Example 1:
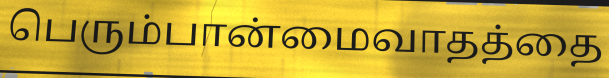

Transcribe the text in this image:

பெரும்பான்மைவாதத்தை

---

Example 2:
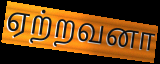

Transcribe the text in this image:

ஏற்றவனா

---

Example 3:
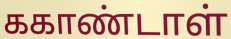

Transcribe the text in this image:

ககாண்டாள்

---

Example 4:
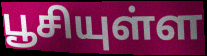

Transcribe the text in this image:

பூசியுள்ள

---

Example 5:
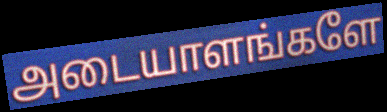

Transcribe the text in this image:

அடையாளங்களே